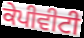
ਕੇਪੀਵੀਟੀ